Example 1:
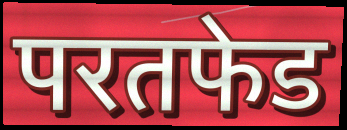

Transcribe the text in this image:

परतफेड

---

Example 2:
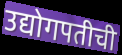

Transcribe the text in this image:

उद्योगपतीची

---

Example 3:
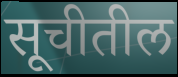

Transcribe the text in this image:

सूचीतील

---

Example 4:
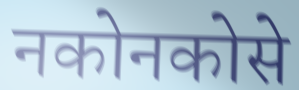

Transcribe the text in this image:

नकोनकोसे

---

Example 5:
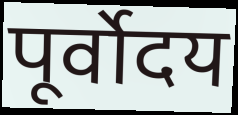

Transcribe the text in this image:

पूर्वोदय